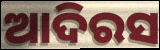
ଆଦିରସ